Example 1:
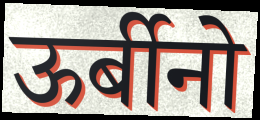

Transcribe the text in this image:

ऊर्बीनो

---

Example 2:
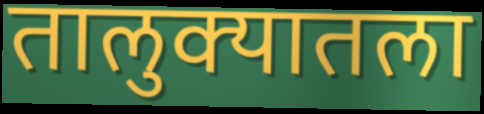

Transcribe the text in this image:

तालुक्यातला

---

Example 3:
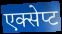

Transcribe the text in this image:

एक्सेप्ट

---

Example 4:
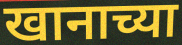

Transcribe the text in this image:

खानाच्या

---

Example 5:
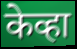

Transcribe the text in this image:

केव्हा